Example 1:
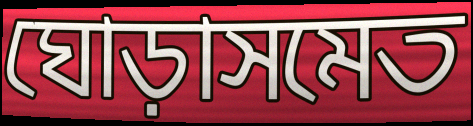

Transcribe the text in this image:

ঘোড়াসমেত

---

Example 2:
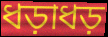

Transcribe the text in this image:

ধড়াধড়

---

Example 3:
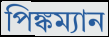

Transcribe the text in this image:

পিঙ্কম্যান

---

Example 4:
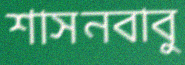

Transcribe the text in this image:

শাসনবাবু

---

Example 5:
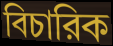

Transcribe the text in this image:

বিচারিক